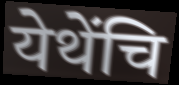
येथेंचि